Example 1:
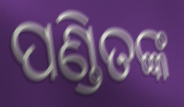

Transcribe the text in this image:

ପଣ୍ଡିତଙ୍କ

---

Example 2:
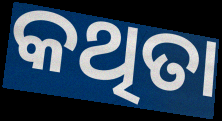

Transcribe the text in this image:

କଥିତା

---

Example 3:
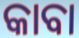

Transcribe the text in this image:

କାବା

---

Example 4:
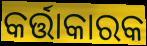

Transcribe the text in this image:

କର୍ତ୍ତାକାରକ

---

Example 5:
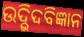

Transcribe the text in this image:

ଉଦ୍ଭିଦବିଜ୍ଞାନ